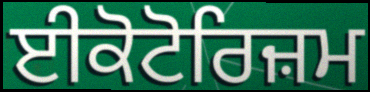
ਈਕੋਟੋਰਿਜ਼ਮ